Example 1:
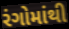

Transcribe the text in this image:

રંગોમાંથી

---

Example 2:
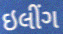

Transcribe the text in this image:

ઇલીંગ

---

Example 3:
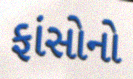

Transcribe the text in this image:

ફાંસોનો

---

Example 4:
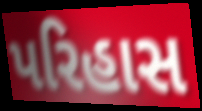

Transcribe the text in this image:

પરિહાસ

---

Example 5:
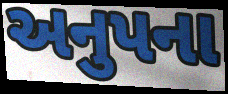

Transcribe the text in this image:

અનુપના